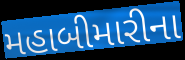
મહાબીમારીના